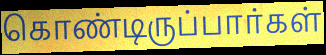
கொண்டிருப்பார்கள்